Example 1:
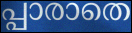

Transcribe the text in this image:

പ്പാരാതെ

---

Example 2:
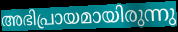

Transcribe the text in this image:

അഭിപ്രായമായിരുന്നു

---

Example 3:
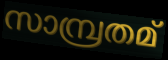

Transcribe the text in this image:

സാമ്പ്രതമ്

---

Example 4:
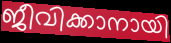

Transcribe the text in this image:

ജീവിക്കാനായി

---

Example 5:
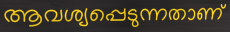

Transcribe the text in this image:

ആവശ്യപ്പെടുന്നതാണ്